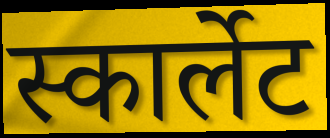
स्कार्लेट